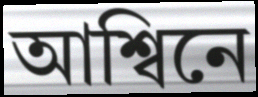
আশ্বিনে